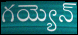
గయ్యెన్